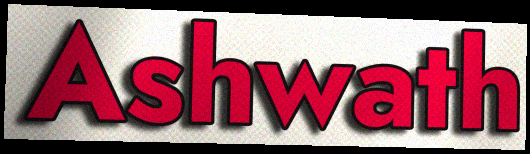
Ashwath